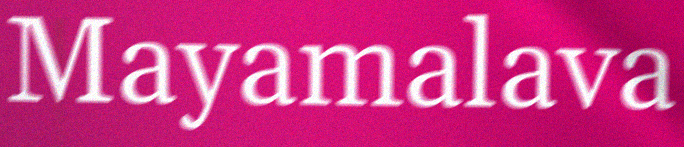
Mayamalava